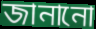
জানানো